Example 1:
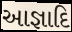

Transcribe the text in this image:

આજ્ઞાદિ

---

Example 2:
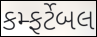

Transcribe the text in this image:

કમ્ફર્ટેબલ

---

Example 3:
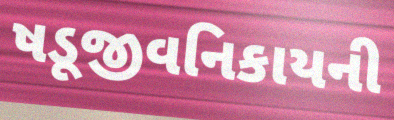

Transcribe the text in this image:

ષડૂજીવનિકાયની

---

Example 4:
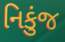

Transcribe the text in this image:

નિકુંજ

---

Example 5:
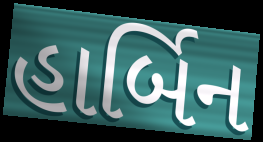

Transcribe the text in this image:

હાર્બિન